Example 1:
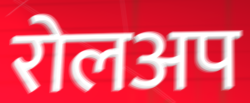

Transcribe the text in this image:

रोलअप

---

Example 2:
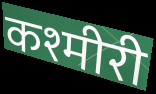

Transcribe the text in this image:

कश्मीरी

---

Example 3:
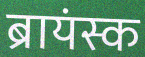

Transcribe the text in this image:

ब्रायंस्क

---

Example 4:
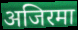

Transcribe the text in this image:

अजिरमा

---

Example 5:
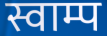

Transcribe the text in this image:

स्वाम्प